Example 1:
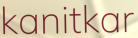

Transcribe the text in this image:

kanitkar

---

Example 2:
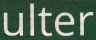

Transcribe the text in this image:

ulter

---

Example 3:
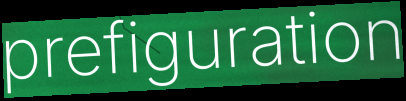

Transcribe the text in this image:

prefiguration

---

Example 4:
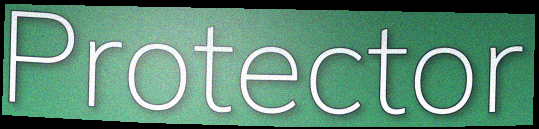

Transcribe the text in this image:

Protector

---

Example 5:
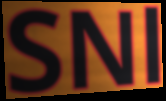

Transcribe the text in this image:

SNl